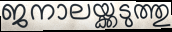
ജനാലയ്ക്കടുത്തു